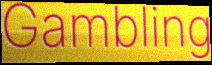
Gambling